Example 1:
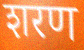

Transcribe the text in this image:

शरण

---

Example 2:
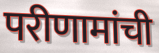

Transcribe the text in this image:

परीणामांची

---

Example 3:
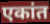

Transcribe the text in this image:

एकांत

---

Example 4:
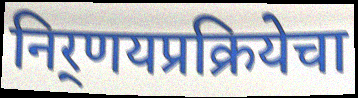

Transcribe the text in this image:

निर्णयप्रक्रियेचा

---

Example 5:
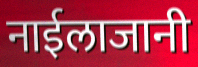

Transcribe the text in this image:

नाईलाजानी